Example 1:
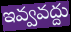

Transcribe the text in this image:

ఇవ్వవద్దు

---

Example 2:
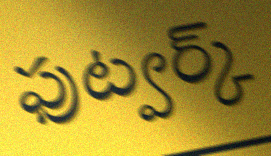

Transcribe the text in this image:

ఫుట్వర్క్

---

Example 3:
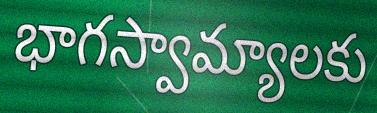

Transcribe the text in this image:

భాగస్వామ్యాలకు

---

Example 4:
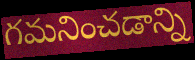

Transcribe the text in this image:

గమనించడాన్ని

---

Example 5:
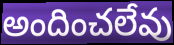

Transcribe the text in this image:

అందించలేవు